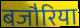
बजौरिया